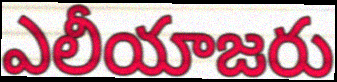
ఎలీయాజరు